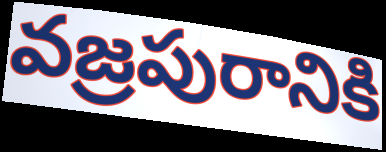
వజ్రపురానికి